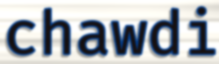
chawdi